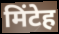
मिंटेह